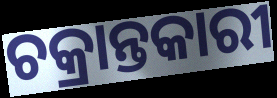
ଚକ୍ରାନ୍ତକାରୀ